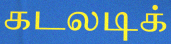
கடலடிக்